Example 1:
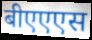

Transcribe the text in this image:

बीएएएस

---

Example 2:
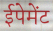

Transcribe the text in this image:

ईपेमेंट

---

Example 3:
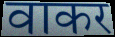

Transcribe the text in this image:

वाकर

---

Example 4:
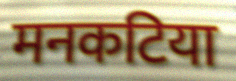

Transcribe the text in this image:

मनकटिया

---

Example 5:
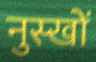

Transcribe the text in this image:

नुस्‍खों